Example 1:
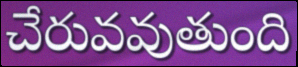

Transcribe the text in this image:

చేరువవుతుంది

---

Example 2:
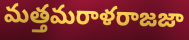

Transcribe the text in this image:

మత్తమరాళరాజజా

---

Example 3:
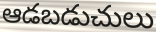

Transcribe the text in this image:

ఆడబడుచులు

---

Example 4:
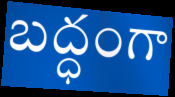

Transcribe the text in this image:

బద్ధంగా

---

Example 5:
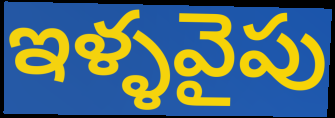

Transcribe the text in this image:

ఇళ్ళవైపు